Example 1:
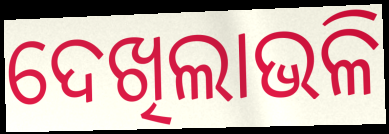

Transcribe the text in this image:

ଦେଖିଲାଭଳି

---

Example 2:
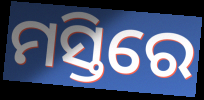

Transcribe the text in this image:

ମସ୍ତିରେ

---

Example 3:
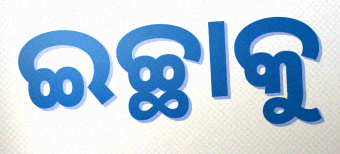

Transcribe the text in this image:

ଇଚ୍ଛାକୁ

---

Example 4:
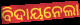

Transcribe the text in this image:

ବିଦାୟନେଲା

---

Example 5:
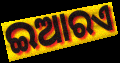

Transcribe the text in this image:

ଇଆରଏ